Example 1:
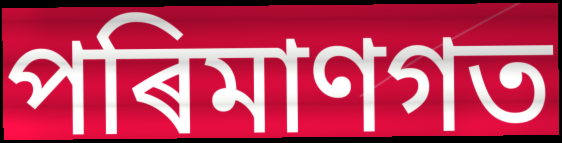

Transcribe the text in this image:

পৰিমাণগত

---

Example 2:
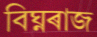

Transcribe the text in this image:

বিঘ্নৰাজ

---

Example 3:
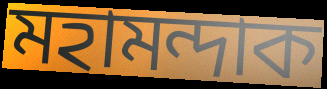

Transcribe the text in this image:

মহামন্দাক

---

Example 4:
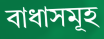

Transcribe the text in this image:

বাধাসমূহ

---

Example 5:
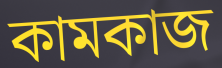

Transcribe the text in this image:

কামকাজ